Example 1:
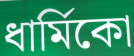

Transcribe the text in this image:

ধার্মিকো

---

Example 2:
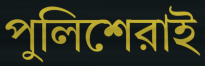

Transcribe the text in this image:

পুলিশেরাই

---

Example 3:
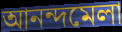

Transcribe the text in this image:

আনন্দমেলা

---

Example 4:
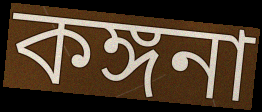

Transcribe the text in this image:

কঙ্গনা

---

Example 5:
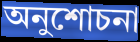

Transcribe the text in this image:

অনুশোচনা